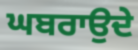
ਘਬਰਾਉਦੇ